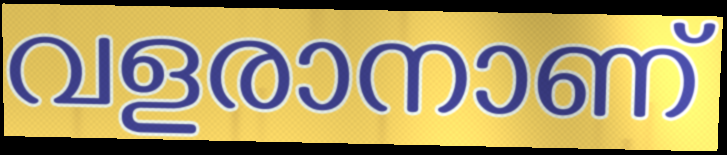
വളരാനാണ്